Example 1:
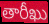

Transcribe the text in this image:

తారీఖు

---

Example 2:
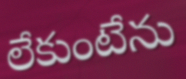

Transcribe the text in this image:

లేకుంటేను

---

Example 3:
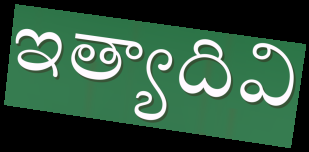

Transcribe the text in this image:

ఇత్యాదివి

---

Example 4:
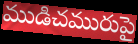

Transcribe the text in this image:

ముడిచమురుపై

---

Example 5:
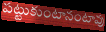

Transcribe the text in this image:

పట్టుకుంటానంటావు